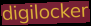
digilocker